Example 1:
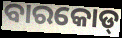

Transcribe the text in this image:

ବାରକୋଡ୍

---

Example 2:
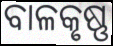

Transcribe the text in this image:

ବାଳକୃଷ୍ଣ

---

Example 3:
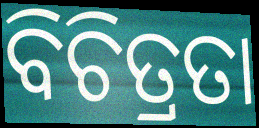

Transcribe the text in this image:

ବିଚିତ୍ରତା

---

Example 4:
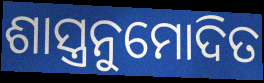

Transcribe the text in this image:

ଶାସ୍ତ୍ରନୁମୋଦିତ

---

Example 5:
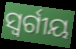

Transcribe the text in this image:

ସ୍ୱର୍ଗୀୟ